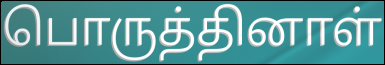
பொருத்தினாள்